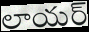
లాయర్